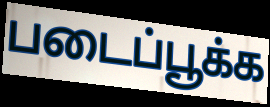
படைப்பூக்க